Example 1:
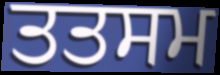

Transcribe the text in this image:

ਤਤਸਮ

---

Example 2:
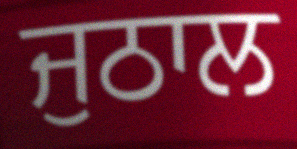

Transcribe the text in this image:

ਜੁਠਾਲ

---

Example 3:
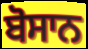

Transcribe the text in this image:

ਬੋਸਾਨ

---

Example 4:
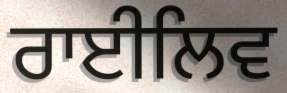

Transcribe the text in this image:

ਰਾਈਲਿਵ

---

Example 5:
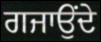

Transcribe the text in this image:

ਗਜਾਉਂਦੇ